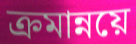
ক্রমান্নয়ে